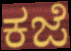
ಕಜೆ